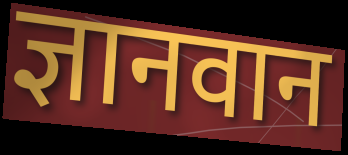
ज्ञानवान